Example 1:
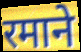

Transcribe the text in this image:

रमाने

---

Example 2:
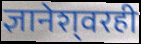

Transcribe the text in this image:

ज्ञानेश्वरही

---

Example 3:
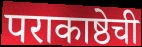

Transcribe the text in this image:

पराकाष्ठेची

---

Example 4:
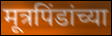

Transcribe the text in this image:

मूत्रपिंडांच्या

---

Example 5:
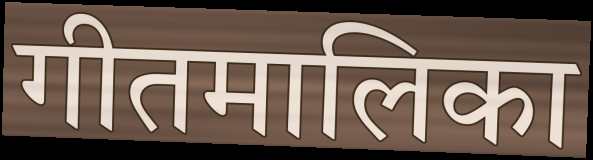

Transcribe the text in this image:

गीतमालिका